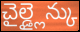
చైల్డ్లైన్కు